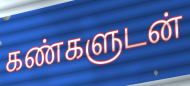
கண்களுடன்